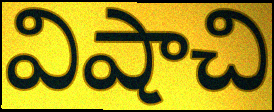
విషాచి